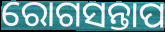
ରୋଗସନ୍ତାପ